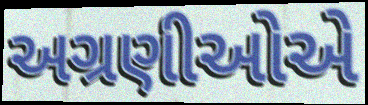
અગ્રણીઓએ